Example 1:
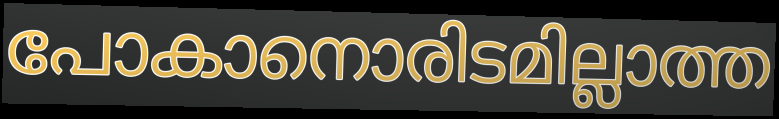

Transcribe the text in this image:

പോകാനൊരിടമില്ലാത്ത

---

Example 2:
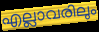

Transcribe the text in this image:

എല്ലാവരിലും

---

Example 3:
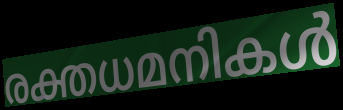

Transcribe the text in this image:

രക്തധമനികൾ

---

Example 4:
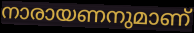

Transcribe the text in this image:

നാരായണനുമാണ്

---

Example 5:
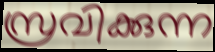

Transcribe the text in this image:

സ്രവിക്കുന്ന